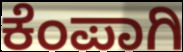
ಕೆಂಪಾಗಿ